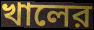
খালের